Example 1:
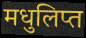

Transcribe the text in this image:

मधुलिप्त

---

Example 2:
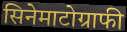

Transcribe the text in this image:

सिनेमाटोग्राफी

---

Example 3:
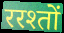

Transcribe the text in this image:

ररश्तों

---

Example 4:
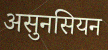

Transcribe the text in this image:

असुनसियन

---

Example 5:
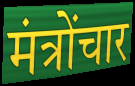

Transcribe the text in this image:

मंत्रोंचार